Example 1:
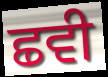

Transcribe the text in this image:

ਛਵੀ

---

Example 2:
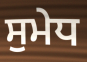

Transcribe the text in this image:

ਸੁਮੇਧ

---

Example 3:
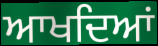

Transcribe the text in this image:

ਆਖਦਿਆਂ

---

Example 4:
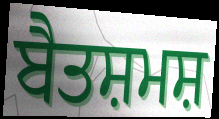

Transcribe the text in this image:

ਬੈਤਸ਼ਮਸ਼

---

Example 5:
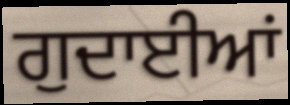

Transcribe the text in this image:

ਗੁਦਾਈਆਂ